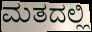
ಮತದಲ್ಲಿ